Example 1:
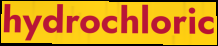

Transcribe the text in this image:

hydrochloric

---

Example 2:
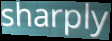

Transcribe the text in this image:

sharply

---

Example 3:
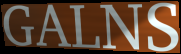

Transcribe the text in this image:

GALNS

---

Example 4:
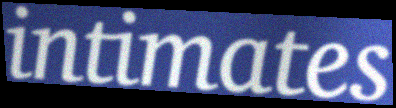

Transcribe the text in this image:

intimates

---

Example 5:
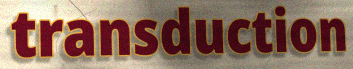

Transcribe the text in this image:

transduction